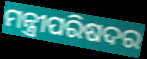
ମନ୍ତ୍ରୀପରିଷଦର